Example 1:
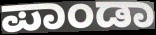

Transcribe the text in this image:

ಪಾಂಡಾ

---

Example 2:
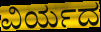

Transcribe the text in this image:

ವಿರ್ಯದ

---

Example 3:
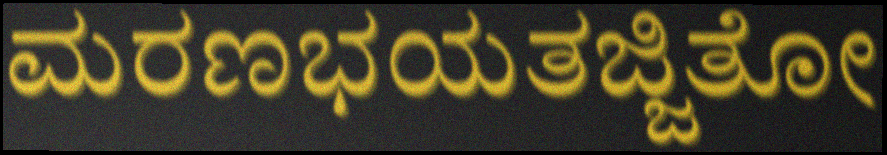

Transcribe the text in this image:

ಮರಣಭಯತಜ್ಜಿತೋ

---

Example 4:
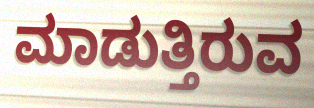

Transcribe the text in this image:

ಮಾಡುತ್ತಿರುವ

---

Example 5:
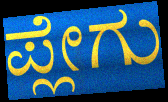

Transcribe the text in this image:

ಪ್ಲೇಗು